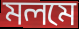
মলমে